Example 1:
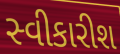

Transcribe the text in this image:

સ્વીકારીશ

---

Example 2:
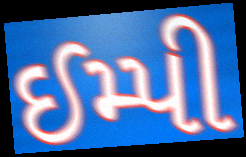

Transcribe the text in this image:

ઈમ્પી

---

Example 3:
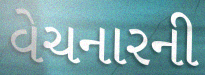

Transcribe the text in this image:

વેચનારની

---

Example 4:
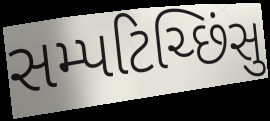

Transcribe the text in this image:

સમ્પટિચ્છિંસુ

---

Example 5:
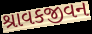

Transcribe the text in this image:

શ્રાવકજીવન